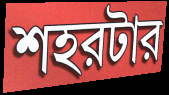
শহরটার